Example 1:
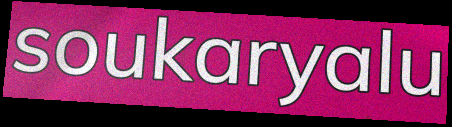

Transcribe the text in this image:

soukaryalu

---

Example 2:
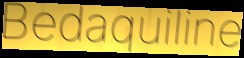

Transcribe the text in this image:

Bedaquiline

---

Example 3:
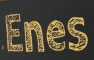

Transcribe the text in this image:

Enes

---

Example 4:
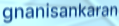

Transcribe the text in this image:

gnanisankaran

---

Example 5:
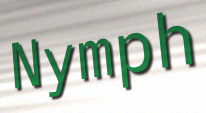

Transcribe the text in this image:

Nymph